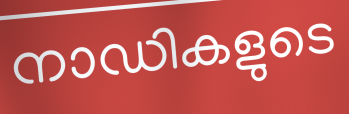
നാഡികളുടെ